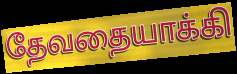
தேவதையாக்கி